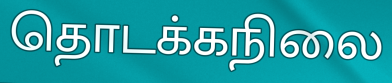
தொடக்கநிலை